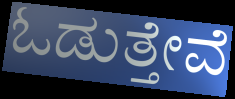
ಓಡುತ್ತೇವೆ